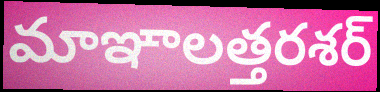
మాఞాలత్తరశర్